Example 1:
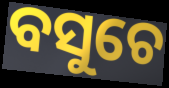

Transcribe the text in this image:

ବସୁଚେ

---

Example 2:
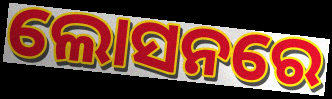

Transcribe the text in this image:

ଲୋସନରେ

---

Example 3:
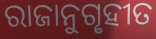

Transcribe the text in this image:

ରାଜାନୁଗୃହୀତ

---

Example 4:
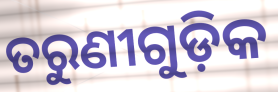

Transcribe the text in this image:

ତରୁଣୀଗୁଡ଼ିକ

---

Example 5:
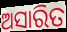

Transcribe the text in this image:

ଅସାରିତ